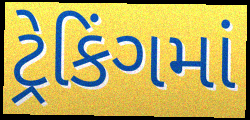
ટ્રેકિંગમાં